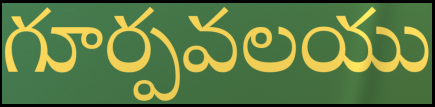
గూర్పవలయు